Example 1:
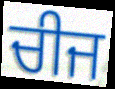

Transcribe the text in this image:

ਚੀਜ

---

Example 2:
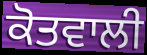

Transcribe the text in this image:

ਕੋਤਵਾਲੀ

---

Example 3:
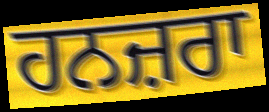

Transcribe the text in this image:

ਹਨਜ਼ਰਾ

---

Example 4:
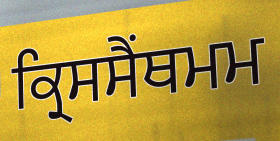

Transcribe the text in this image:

ਕ੍ਰਿਸਸੈਂਥਮਮ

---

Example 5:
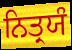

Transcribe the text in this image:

ਨਿਤ੍ਰਯੰ